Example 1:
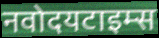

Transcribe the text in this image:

नवोदयटाइम्स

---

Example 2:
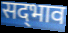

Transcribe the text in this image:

सद्‍भाव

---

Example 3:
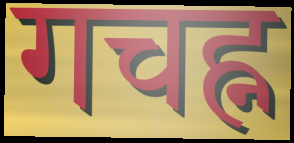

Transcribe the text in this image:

गचह्न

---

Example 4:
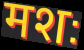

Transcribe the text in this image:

मशः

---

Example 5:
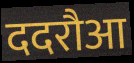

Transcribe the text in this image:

ददरौआ